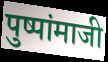
पुष्पांमाजी